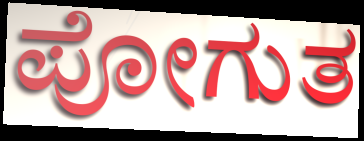
ಪೋಗುತ